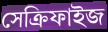
সেক্রিফাইজ